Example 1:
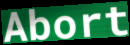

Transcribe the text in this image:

Abort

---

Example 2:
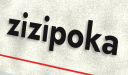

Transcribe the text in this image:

zizipoka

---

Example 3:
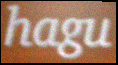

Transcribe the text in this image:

hagu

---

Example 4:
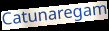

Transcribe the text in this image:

Catunaregam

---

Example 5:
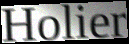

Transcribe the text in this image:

Holier